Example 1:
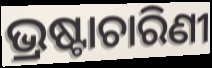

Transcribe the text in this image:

ଭ୍ରଷ୍ଟାଚାରିଣୀ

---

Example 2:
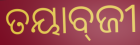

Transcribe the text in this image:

ତୟାବ୍‌ଜୀ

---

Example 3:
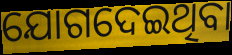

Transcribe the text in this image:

ଯୋଗଦେଇଥିବା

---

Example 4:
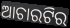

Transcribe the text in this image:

ଆଚାରଟିର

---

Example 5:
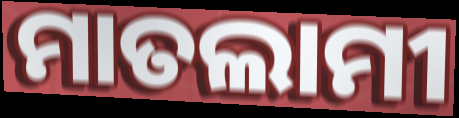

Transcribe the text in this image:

ମାତଲାମୀ